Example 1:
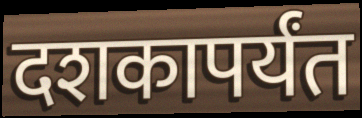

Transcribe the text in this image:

दशकापर्यंत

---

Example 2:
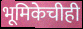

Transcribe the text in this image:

भूमिकेचीही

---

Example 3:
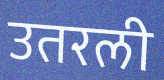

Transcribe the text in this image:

उतरली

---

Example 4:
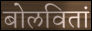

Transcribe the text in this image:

बोलवितां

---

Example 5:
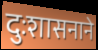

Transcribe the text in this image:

दुःशासनाने